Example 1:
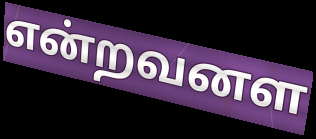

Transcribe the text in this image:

என்றவனள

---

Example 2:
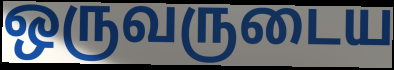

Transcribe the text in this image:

ஒருவருடைய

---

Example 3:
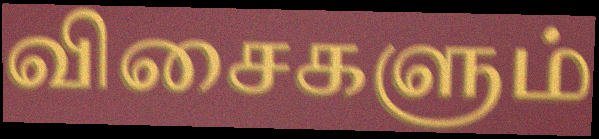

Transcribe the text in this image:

விசைகளும்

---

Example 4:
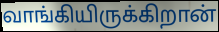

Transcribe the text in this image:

வாங்கியிருக்கிறான்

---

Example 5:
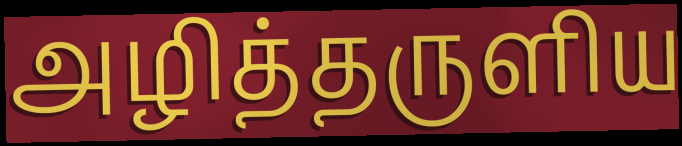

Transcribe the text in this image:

அழித்தருளிய